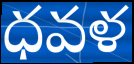
ధవళ